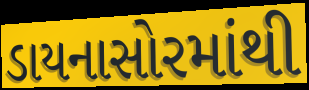
ડાયનાસોરમાંથી